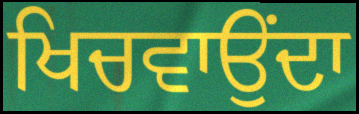
ਖਿਚਵਾਉਂਦਾ